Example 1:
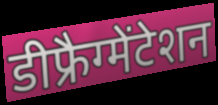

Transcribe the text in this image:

डीफ्रैग्मेंटेशन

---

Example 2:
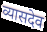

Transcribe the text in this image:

व्यासदेव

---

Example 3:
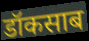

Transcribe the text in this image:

डॉकसाब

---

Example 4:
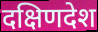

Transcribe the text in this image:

दक्षिणदेश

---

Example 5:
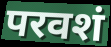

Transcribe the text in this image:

परवशं